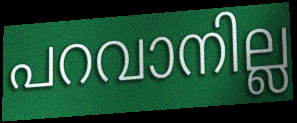
പറവാനില്ല